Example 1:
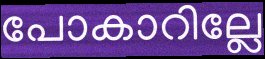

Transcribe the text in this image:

പോകാറില്ലേ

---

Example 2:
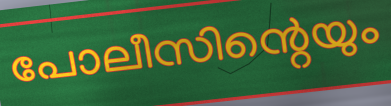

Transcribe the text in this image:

പോലീസിന്റെയും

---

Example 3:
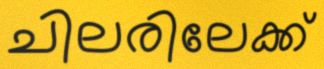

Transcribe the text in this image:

ചിലരിലേക്ക്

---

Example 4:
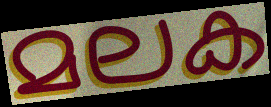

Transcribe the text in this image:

മലക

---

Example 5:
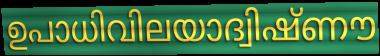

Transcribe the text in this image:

ഉപാധിവിലയാദ്വിഷ്ണൗ